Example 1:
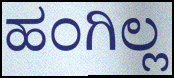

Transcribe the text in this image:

ಹಂಗಿಲ್ಲ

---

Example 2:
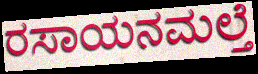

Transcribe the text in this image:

ರಸಾಯನಮಲ್ತೆ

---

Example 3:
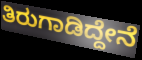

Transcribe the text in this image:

ತಿರುಗಾಡಿದ್ದೇನೆ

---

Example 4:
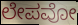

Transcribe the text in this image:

ಲೇಪವೋ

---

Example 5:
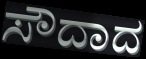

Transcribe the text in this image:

ಸೌದಾದ